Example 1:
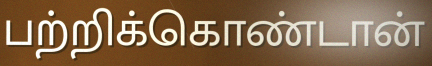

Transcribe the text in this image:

பற்றிக்கொண்டான்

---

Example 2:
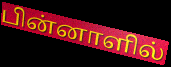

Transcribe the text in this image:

பின்னாளில்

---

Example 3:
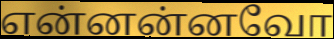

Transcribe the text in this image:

என்னன்னவோ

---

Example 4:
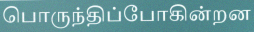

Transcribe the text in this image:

பொருந்திப்போகின்றன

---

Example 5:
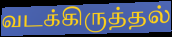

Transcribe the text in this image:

வடக்கிருத்தல்